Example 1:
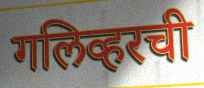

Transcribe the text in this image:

गलिव्हरची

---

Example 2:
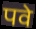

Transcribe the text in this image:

पवे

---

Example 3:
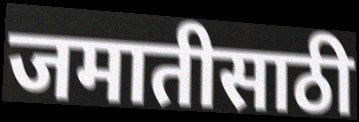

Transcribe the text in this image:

जमातीसाठी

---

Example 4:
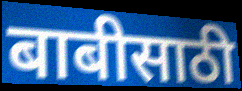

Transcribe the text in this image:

बाबीसाठी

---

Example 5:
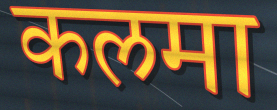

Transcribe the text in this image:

कलमा